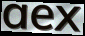
aex